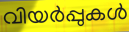
വിയർപ്പുകൾ